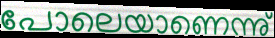
പോലെയാണെന്നു്